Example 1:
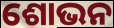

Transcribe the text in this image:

ଶୋଭନ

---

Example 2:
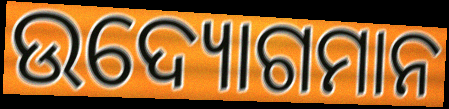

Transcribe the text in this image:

ଉଦ୍ୟୋଗମାନ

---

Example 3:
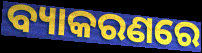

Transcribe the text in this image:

ବ୍ୟାକରଣରେ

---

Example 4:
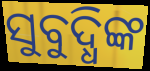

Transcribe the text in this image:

ସୁବୁଦ୍ଧିଙ୍କ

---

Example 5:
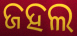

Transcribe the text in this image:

ଜହଲ